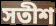
সতীশ